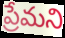
ప్రేమని